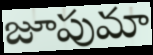
జూపుమా